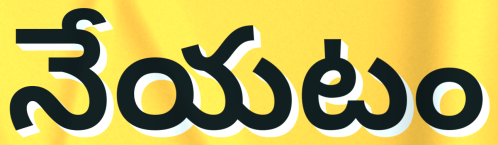
నేయటం